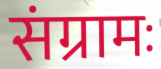
संग्रामः